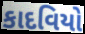
કાદવિયો